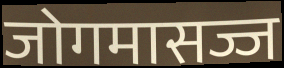
जोगमासज्ज